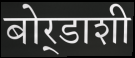
बोर्डाशी